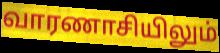
வாரணாசியிலும்